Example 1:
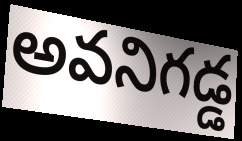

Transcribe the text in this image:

అవనిగడ్డ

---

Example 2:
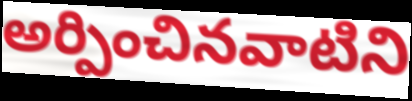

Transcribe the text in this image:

అర్పించినవాటిని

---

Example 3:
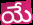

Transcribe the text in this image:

యే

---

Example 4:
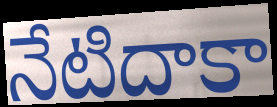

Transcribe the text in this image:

నేటిదాకా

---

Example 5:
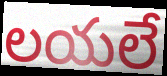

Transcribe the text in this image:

లయలే